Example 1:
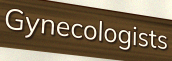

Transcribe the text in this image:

Gynecologists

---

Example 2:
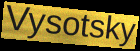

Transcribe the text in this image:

Vysotsky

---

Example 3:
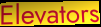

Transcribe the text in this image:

Elevators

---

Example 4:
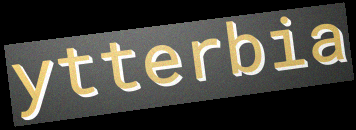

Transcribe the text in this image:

ytterbia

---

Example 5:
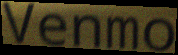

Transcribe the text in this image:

Venmo